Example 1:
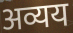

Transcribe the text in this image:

अव्यय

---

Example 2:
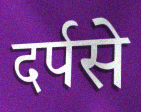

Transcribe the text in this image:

दर्पसे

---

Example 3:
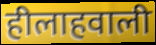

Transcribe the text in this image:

हीलाहवाली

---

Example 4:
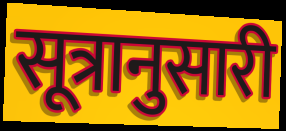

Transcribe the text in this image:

सूत्रानुसारी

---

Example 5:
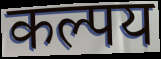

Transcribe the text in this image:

कल्पय